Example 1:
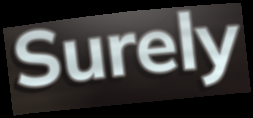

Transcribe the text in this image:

Surely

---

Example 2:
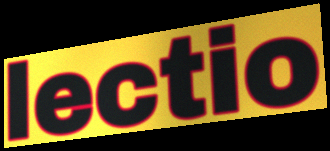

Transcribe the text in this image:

lectio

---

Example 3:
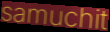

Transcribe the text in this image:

samuchit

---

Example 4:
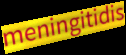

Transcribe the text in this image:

meningitidis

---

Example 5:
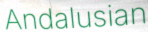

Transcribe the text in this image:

Andalusian